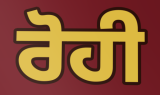
ਰੋਹੀ